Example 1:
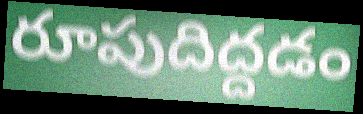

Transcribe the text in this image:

రూపుదిద్దడం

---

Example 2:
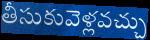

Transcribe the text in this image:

తీసుకువెళ్లవచ్చు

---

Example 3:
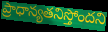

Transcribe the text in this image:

ప్రాధాన్యతనిస్తోందని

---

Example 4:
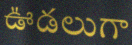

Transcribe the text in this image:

ఊడలుగా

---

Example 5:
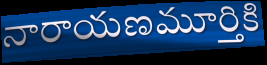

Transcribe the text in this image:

నారాయణమూర్తికి